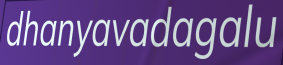
dhanyavadagalu